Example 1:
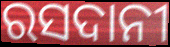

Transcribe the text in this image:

ରସଦାନୀ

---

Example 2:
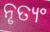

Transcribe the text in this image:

ନୃତ୍ୟଂ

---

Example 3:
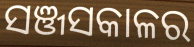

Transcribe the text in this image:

ସଞ୍ଜସକାଳର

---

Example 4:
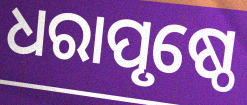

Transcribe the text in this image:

ଧରାପୃଷ୍ଠେ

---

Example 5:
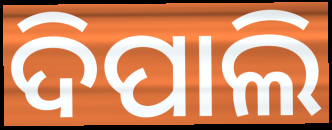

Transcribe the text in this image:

ଦିପାଲି